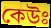
কেউঃ